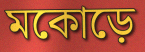
মকোড়ে